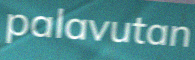
palavutan